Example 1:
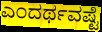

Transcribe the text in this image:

ಎಂದರ್ಥವಷ್ಟೆ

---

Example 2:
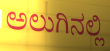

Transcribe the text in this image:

ಅಲುಗಿನಲ್ಲಿ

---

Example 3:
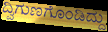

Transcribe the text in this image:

ದ್ವಿಗುಣಗೊಂಡಿದ್ದು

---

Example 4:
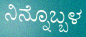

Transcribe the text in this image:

ನಿನ್ನೊಬ್ಬಳ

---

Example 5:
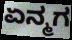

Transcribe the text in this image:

ಏನ್ಮಗ